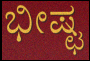
ಭೀಷ್ಟ